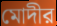
মোদীর